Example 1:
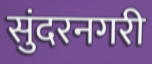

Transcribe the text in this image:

सुंदरनगरी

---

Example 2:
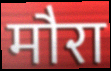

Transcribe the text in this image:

मौरा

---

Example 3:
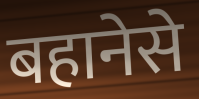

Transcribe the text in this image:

बहानेसे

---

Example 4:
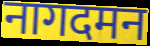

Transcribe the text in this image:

नागदमन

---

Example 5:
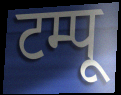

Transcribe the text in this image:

टम्पू